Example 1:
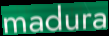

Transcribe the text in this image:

madura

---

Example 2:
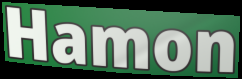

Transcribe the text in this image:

Hamon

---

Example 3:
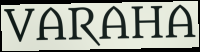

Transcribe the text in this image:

VARAHA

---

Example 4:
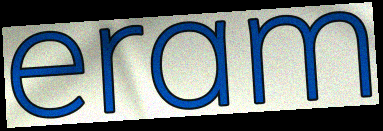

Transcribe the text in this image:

eram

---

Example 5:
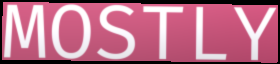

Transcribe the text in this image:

MOSTLY